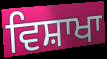
ਵਿਸ਼ਾਖਾ